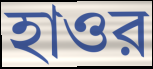
হাওর